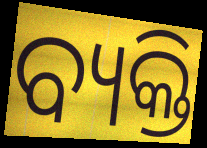
ବ୍ୟକ୍ତି